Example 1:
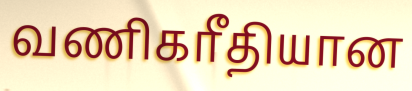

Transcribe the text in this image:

வணிகரீதியான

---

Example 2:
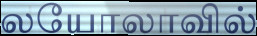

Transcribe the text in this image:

லயோலாவில்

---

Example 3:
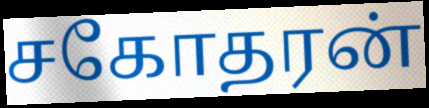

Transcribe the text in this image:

சகோதரன்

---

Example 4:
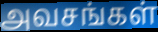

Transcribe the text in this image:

அவசங்கள்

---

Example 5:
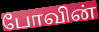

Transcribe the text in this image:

போவின்